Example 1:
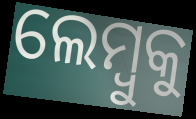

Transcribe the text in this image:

ଲେମ୍ବୁକୁ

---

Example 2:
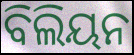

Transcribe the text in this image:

ବିଲିୟନ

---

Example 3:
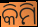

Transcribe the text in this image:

କିମି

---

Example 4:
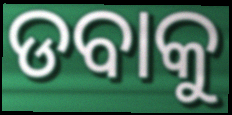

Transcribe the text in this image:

ଡବାକୁ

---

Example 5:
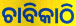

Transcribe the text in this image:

ଚାବିକାଠି